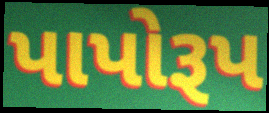
પાપોરૂપ